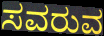
ಸವರುವ